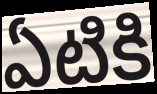
ఏటికి